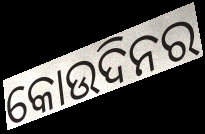
କୋଉଦିନର